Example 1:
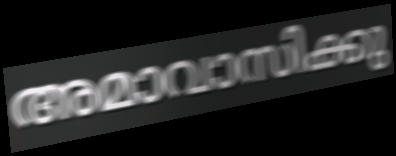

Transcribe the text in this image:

അമാവാസിക്കു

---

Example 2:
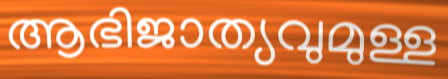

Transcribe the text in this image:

ആഭിജാത്യവുമുള്ള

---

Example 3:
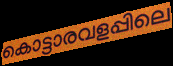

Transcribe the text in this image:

കൊട്ടാരവളപ്പിലെ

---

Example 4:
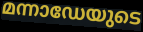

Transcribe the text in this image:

മന്നാഡേയുടെ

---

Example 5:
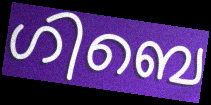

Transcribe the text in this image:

ഗിബെ